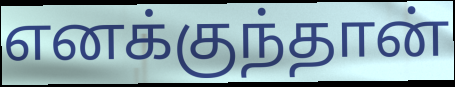
எனக்குந்தான்